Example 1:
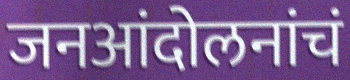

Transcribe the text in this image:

जनआंदोलनांचं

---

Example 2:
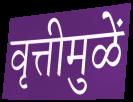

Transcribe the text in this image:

वृत्तीमुळें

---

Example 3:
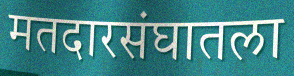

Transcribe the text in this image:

मतदारसंघातला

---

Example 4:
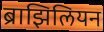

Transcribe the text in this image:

ब्राझिलियन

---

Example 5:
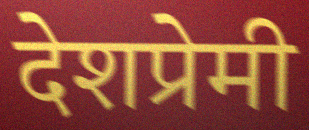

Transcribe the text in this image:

देशप्रेमी